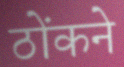
ठोंकने